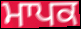
ਮਾਪਕ